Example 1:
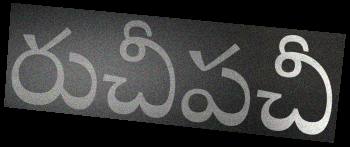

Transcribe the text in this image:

రుచీపచీ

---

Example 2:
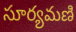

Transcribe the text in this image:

సూర్యమణి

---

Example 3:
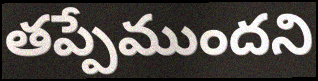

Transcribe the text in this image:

తప్పేముందని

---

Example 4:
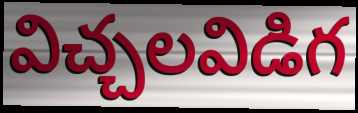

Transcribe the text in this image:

విచ్చలవిడిగ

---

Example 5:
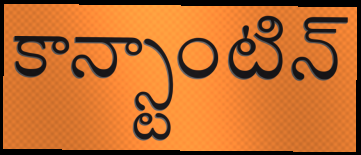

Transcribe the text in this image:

కాన్స్టాంటిన్